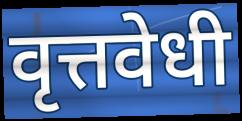
वृत्तवेधी